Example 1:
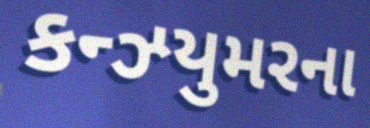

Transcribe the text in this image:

કન્ઝ્યુમરના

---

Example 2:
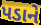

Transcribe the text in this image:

પડાને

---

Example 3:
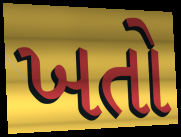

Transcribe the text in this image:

ખતો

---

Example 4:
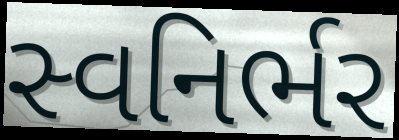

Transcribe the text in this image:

સ્વનિર્ભર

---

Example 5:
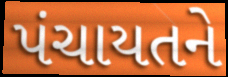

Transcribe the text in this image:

પંચાયતને